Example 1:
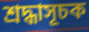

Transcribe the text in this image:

শ্রদ্ধাসূচক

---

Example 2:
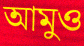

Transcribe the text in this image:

আমুও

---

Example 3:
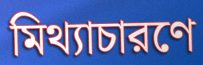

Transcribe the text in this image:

মিথ্যাচারণে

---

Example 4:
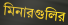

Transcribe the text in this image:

মিনারগুলির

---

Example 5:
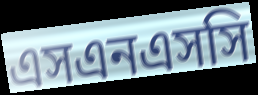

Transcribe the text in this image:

এসএনএসসি